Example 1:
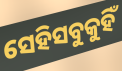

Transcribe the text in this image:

ସେହିସବୁକୁହିଁ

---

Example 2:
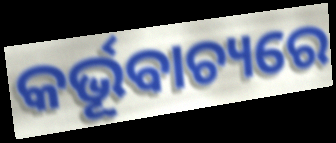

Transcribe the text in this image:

କର୍ଭୂବାଚ୍ୟରେ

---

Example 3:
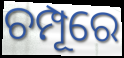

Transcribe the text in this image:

ଚମ୍ପୂରେ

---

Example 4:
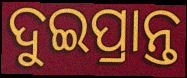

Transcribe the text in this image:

ଦୁଇପ୍ରାନ୍ତ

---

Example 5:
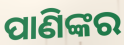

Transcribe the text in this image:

ପାଣିଙ୍କର